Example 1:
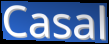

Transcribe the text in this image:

Casal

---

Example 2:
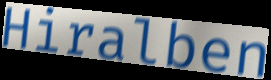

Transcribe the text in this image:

Hiralben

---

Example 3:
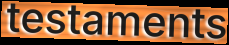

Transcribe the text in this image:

testaments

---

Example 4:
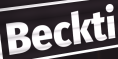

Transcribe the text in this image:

Beckti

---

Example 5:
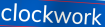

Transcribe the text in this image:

clockwork